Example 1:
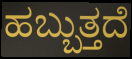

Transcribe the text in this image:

ಹಬ್ಬುತ್ತದೆ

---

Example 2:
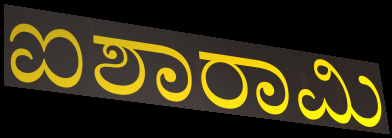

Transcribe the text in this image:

ಐಶಾರಾಮಿ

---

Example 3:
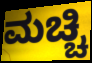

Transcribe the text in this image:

ಮಚ್ಚಿ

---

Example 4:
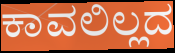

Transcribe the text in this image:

ಕಾವಲಿಲ್ಲದ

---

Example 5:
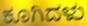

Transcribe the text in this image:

ಕೂಗಿದಳು